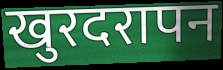
खुरदरापन